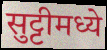
सुट्टीमध्ये